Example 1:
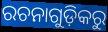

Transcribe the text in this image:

ରଚନାଗୁଡ଼ିକରୁ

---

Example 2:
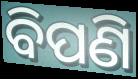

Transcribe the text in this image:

ବିପଣି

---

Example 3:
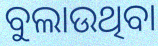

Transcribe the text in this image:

ବୁଲାଉଥିବା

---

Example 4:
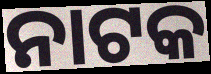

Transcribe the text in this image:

ନାଟକ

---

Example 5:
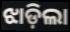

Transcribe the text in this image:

ଝାଡ଼ିଲା